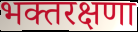
भक्तरक्षणा